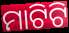
ମାଟିଟି